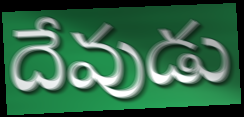
దేవుడు